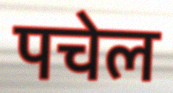
पचेल